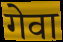
गेवा